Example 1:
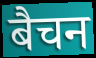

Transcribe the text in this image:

बैचन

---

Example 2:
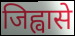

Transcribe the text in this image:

जिह्वासे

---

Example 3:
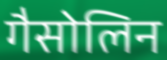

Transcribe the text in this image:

गैसोलिन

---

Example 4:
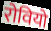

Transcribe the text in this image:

रोवियो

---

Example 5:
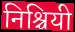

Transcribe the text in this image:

निश्चियी